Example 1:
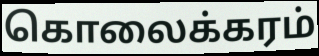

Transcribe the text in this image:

கொலைக்கரம்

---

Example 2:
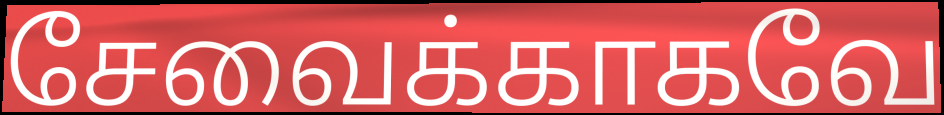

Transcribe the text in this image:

சேவைக்காகவே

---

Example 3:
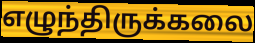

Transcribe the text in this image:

எழுந்திருக்கலை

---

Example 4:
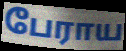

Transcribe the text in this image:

பேராய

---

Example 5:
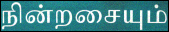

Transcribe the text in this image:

நின்றசையும்